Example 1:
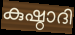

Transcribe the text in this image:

കുഷ്ഠാദി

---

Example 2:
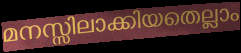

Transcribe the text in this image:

മനസ്സിലാക്കിയതെല്ലാം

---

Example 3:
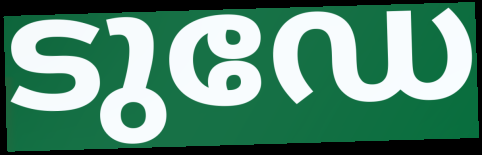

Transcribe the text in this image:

ടുഡേ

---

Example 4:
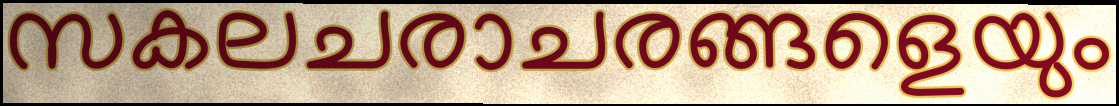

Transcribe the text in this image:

സകലചരാചരങ്ങളെയും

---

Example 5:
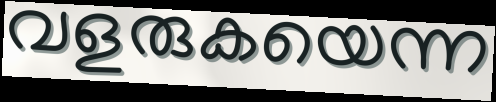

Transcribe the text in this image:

വളരുകയെന്ന